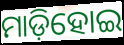
ମାଡ଼ିହୋଇ